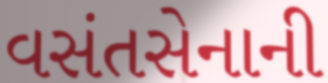
વસંતસેનાની